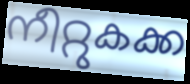
നീറ്റുകക്ക